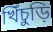
খিঁচুড়ি